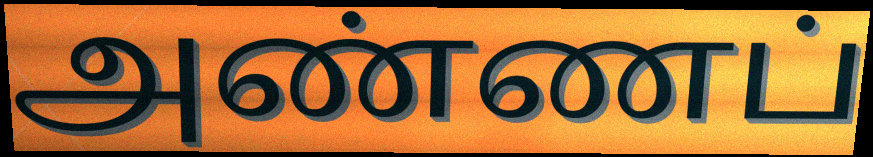
அண்ணப்